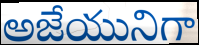
అజేయునిగా